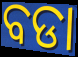
ବଡା